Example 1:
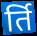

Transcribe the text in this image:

र्ति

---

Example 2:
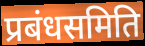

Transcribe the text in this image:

प्रबंधसमिति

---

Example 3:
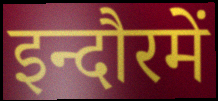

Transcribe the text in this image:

इन्दौरमें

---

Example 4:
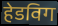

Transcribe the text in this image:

हेडविग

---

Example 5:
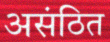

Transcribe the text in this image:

असंठित